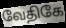
வேதிகே